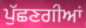
ਪੁੱਛਣਗੀਆਂ